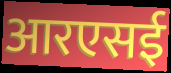
आरएसई